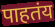
पाहतंय